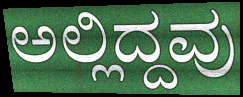
ಅಲ್ಲಿದ್ದವು